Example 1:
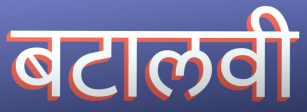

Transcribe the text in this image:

बटालवी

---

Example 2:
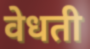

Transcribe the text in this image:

वेधती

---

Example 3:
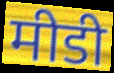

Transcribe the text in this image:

मीडी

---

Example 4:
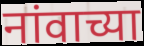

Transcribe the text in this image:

नांवाच्या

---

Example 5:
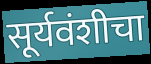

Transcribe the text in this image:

सूर्यवंशीचा